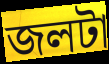
জলটা